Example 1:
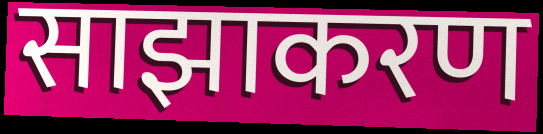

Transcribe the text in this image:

साझाकरण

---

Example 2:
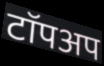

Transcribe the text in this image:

टॉपअप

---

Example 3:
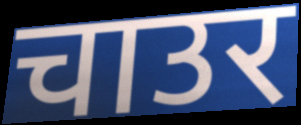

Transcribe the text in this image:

चाउर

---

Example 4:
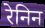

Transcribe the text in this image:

रेनिन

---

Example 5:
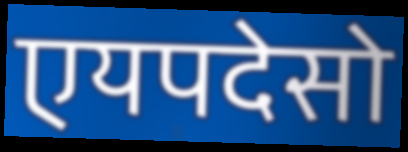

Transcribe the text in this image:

एयपदेसो